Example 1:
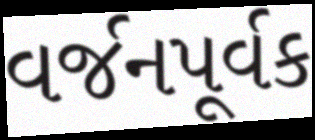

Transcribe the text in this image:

વર્જનપૂર્વક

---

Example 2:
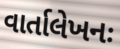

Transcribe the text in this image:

વાર્તાલેખનઃ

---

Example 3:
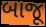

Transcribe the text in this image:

બાજૂ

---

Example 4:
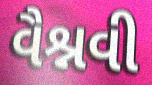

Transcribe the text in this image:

વૈશ્નવી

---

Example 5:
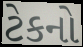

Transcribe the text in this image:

ટેકનો